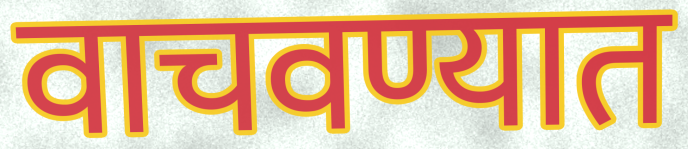
वाचवण्यात